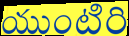
యుంటిరి